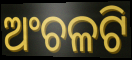
ଅଂଚଳଟି